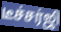
டீச்சர்ஜி